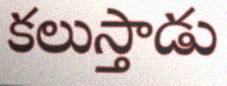
కలుస్తాడు